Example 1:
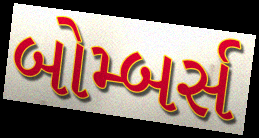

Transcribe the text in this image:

બોમ્બર્સ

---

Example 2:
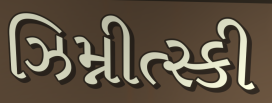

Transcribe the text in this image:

ઝિમ્નીત્સ્કી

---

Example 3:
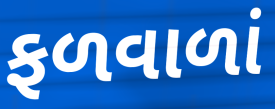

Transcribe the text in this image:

ફળવાળાં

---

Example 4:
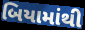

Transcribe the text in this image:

બિયામાંથી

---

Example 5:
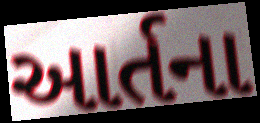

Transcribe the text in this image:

આર્તના